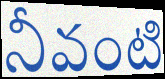
నీవంటి